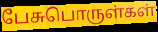
பேசுபொருள்கள்